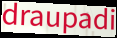
draupadi